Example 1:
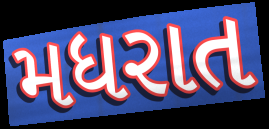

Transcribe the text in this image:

મધરાત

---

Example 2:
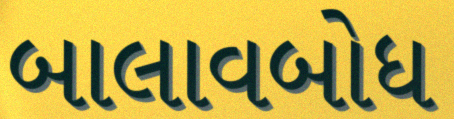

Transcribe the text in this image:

બાલાવબોધ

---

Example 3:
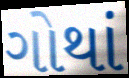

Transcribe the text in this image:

ગોથાં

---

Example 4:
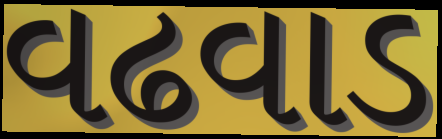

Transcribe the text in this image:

વઢવાડ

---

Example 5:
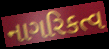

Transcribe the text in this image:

નાગરિકત્વ